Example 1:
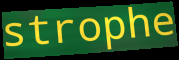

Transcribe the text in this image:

strophe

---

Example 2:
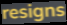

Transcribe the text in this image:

resigns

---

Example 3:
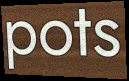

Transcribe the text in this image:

pots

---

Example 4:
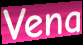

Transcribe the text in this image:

Vena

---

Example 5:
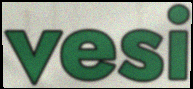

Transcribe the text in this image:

vesi